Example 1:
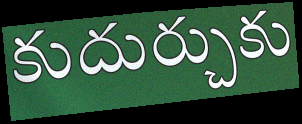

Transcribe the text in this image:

కుదుర్చుకు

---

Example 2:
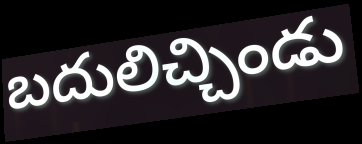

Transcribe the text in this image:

బదులిచ్చిండు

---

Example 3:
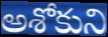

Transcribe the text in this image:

అశోకుని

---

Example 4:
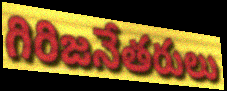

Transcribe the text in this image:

గిరిజనేతరులు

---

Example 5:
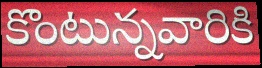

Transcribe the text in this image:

కొంటున్నవారికి